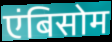
एंबिसोम